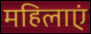
महिलाएं